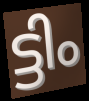
ട്ടിം